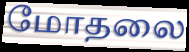
மோதலை